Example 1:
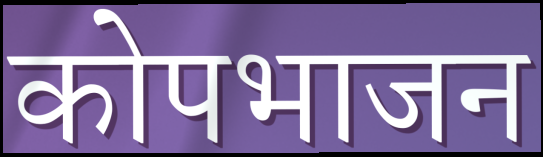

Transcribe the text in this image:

कोपभाजन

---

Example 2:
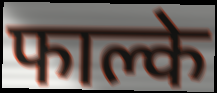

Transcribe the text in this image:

फाल्के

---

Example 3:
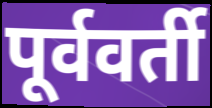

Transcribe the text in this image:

पूर्ववर्ती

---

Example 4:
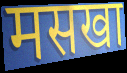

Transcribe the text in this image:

मसखा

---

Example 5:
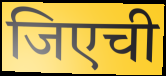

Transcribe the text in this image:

जिएची